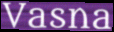
Vasna